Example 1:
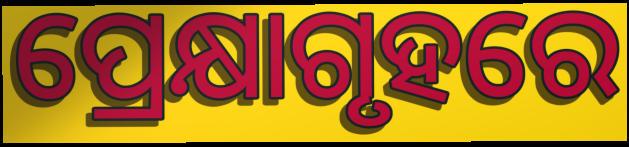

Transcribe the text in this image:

ପ୍ରେକ୍ଷାଗୃହରେ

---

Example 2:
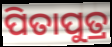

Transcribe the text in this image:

ପିତାପୁତ୍ର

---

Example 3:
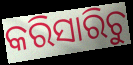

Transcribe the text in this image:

କରିସାରିଚୁ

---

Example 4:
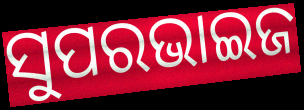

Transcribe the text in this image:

ସୁପରଭାଇଜ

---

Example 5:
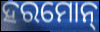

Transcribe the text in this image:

ହରମୋନ୍